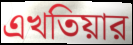
এখতিয়ার